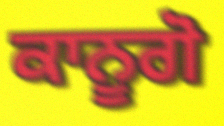
ਕਾਨੂਗੋ